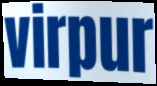
virpur